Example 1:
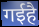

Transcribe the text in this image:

गईहै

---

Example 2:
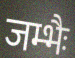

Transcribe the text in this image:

जम्भैः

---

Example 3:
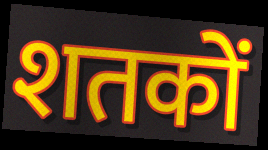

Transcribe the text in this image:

शतकों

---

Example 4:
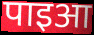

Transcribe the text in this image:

पाइआ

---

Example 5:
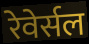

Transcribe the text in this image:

रेवेर्सल